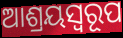
ଆଶ୍ରୟସ୍ୱରୂପ